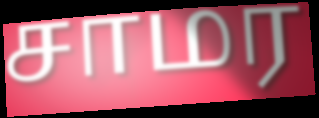
சாமர